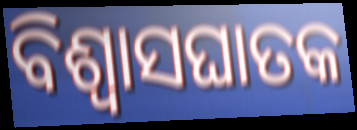
ବିଶ୍ୱାସଘାତକ